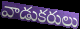
వాడుకరులు